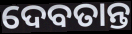
ଦେବତାନ୍ତ